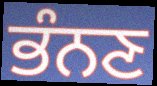
ਭੰਨਣ